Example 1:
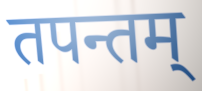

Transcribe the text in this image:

तपन्तम्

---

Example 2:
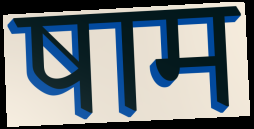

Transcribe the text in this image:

षाम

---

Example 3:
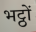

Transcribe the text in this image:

भट्ठों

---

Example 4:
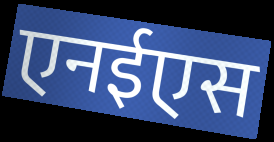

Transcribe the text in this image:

एनईएस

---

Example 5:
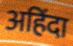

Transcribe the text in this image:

अहिंदा